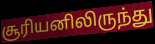
சூரியனிலிருந்து